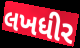
લખધીર